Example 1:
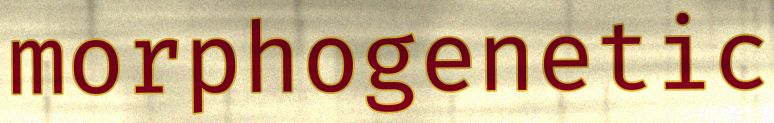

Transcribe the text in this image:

morphogenetic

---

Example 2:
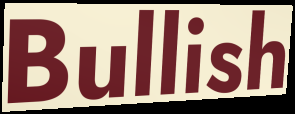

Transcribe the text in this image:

Bullish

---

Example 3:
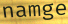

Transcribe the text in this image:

namge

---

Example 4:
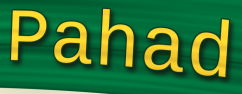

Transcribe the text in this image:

Pahad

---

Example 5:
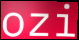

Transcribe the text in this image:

ozi